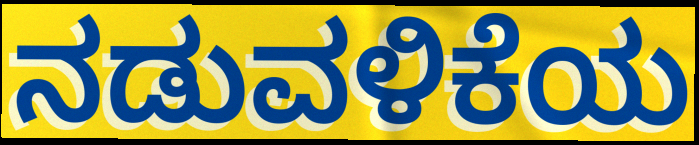
ನಡುವಳಿಕೆಯ